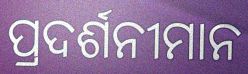
ପ୍ରଦର୍ଶନୀମାନ